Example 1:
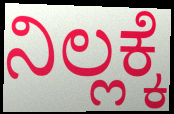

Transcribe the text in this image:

ನಿಲ್ಲಕ್ಕೆ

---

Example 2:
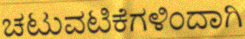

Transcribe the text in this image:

ಚಟುವಟಿಕೆಗಳಿಂದಾಗಿ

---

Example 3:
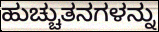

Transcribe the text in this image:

ಹುಚ್ಚುತನಗಳನ್ನು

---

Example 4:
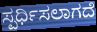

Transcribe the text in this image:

ಸ್ಪರ್ಧಿಸಲಾಗದೆ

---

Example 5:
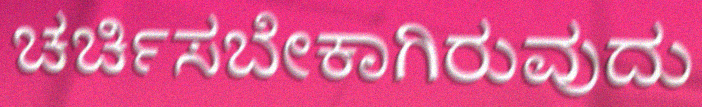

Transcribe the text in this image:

ಚರ್ಚಿಸಬೇಕಾಗಿರುವುದು